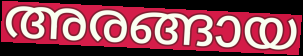
അരങ്ങായ